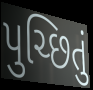
પુચ્છિતું